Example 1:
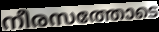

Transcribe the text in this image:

നീരസത്തോടെ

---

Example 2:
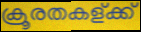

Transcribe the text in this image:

ക്രൂരതകള്ക്ക്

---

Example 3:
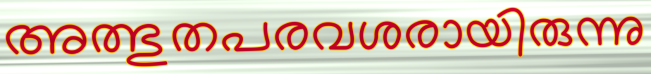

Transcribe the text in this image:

അത്ഭുതപരവശരായിരുന്നു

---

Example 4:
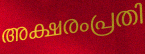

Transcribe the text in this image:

അക്ഷരംപ്രതി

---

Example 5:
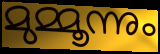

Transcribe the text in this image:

മുമ്മൂന്നും